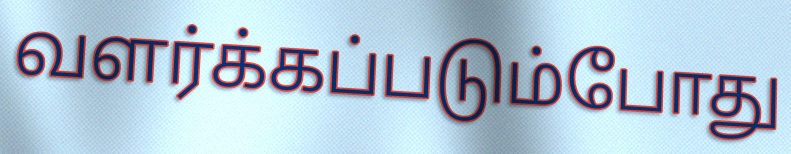
வளர்க்கப்படும்போது